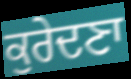
ਕੁਰੇਦਣਾ